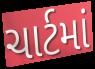
ચાર્ટમાં